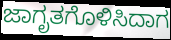
ಜಾಗೃತಗೊಳಿಸಿದಾಗ